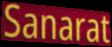
Sanarat